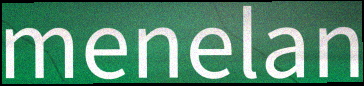
menelan